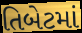
તિબેટમાં